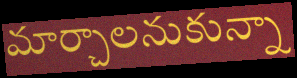
మార్చాలనుకున్నా